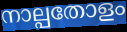
നാല്പതോളം